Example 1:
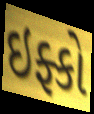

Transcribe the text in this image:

ઇફ્કો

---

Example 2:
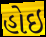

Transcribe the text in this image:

હોઇ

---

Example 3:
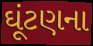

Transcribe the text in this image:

ઘૂંટણના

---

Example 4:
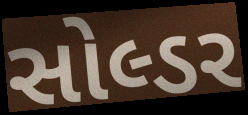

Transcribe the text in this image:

સોલ્ડર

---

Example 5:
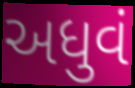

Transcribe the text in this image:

અધુવં